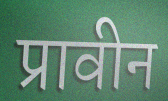
प्रावीन